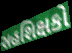
સહશિક્ષકો